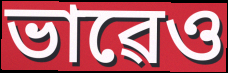
ভাৱেও